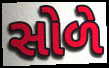
સોળે